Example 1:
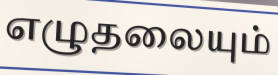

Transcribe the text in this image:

எழுதலையும்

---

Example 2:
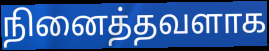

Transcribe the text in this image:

நினைத்தவளாக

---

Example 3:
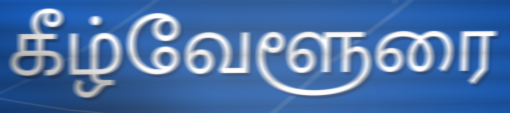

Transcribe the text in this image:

கீழ்வேளூரை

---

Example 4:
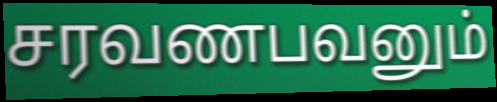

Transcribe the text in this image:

சரவணபவனும்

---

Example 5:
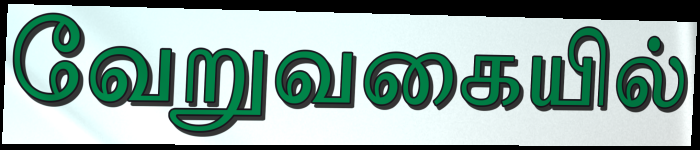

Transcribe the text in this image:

வேறுவகையில்